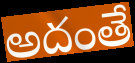
అదంతే